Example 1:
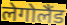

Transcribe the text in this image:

लेगोलैंड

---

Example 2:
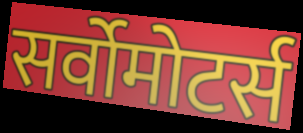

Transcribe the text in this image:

सर्वोमोटर्स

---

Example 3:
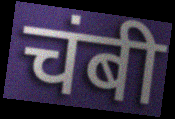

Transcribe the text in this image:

चंबी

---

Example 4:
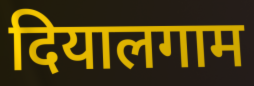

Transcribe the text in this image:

दियालगाम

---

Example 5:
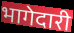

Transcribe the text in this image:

भागेदारी